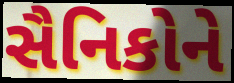
સૈનિકોને